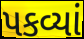
પકવ્યાં